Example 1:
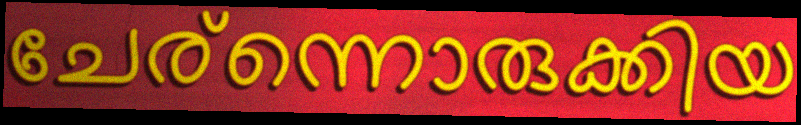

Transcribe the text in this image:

ചേര്ന്നൊരുക്കിയ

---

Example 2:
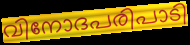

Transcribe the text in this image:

വിനോദപരിപാടി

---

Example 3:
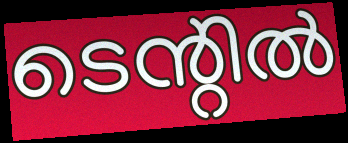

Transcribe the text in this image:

ടെന്റിൽ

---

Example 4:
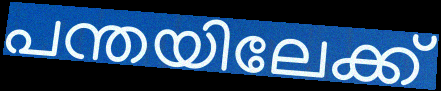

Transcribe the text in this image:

പന്തയിലേക്ക്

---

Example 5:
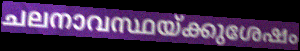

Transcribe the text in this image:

ചലനാവസ്ഥയ്ക്കുശേഷം